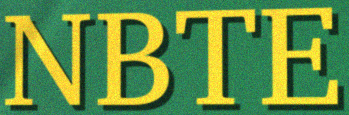
NBTE